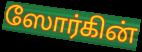
ஸோர்கின்